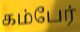
கம்பேர்